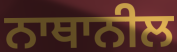
ਨਾਥਾਨੀਲ